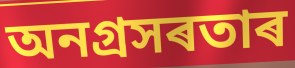
অনগ্ৰসৰতাৰ